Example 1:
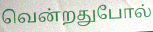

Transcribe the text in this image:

வென்றதுபோல்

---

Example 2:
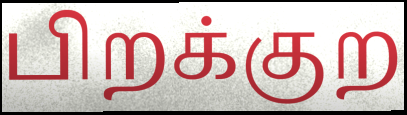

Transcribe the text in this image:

பிறக்குற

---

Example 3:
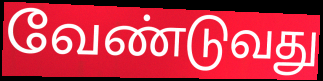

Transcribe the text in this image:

வேண்டுவது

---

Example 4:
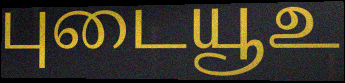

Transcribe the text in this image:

புடையூஉ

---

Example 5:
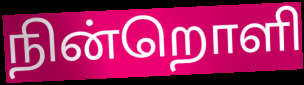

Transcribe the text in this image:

நின்றொளி